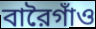
বারৈগাঁও